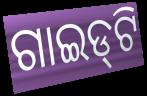
ଗାଇଡ୍‌ଟି